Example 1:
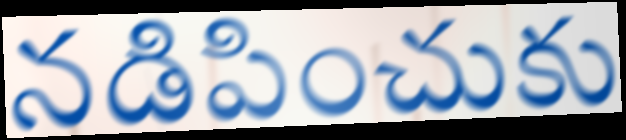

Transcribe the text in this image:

నడిపించుకు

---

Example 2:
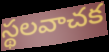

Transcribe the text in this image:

స్థలవాచక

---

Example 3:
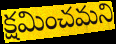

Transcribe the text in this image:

క్షమించమని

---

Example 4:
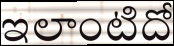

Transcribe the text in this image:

ఇలాంటిదో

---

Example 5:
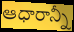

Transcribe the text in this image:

ఆధారాన్నీ